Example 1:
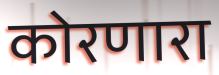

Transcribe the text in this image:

कोरणारा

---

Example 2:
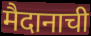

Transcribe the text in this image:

मैदानाची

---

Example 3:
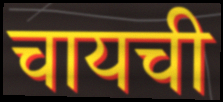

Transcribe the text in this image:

चायची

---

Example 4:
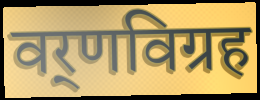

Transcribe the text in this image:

वर्णविग्रह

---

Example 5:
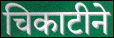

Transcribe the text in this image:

चिकाटीने